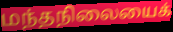
மந்தநிலையைக்